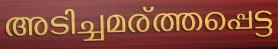
അടിച്ചമര്ത്തപ്പെട്ട